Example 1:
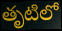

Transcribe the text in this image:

తృటిలో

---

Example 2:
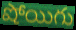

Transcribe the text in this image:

షోయిగు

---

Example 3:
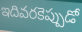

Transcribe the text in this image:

ఇదివరకెప్పుడో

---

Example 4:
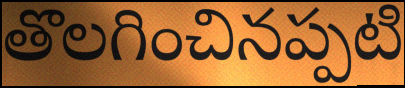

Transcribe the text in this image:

తొలగించినప్పటి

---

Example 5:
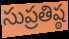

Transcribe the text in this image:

సుప్రతిష్ఠ